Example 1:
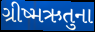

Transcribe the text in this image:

ગ્રીષ્મઋતુના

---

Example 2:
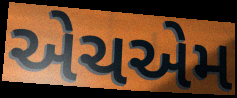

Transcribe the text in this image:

એચએમ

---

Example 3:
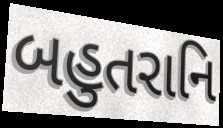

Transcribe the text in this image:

બહુતરાનિ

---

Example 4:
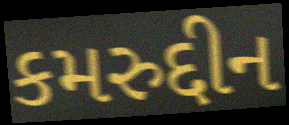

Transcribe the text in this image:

કમરુદ્દીન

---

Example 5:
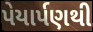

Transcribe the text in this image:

પેયાર્પણથી